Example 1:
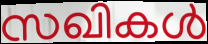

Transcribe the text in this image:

സഖികൾ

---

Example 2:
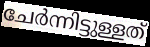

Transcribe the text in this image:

ചേർന്നിട്ടുള്ളത്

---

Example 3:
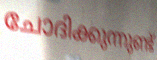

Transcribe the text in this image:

ചോദിക്കുന്നുണ്ട്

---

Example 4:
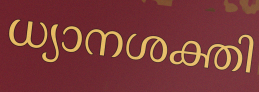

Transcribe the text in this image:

ധ്യാനശക്തി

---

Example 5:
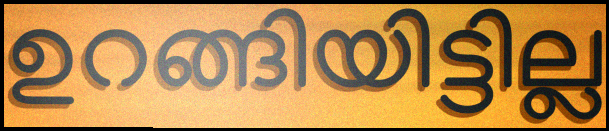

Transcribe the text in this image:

ഉറങ്ങിയിട്ടില്ല